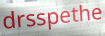
drsspethe